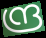
ന്ദ്ര